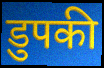
डुपकी